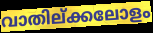
വാതില്ക്കലോളം